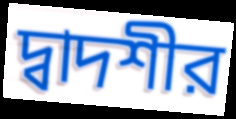
দ্বাদশীর